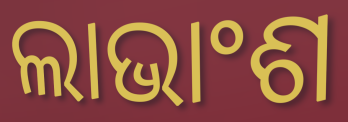
ଲାଭାଂଶ